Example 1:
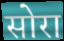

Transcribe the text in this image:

सोरा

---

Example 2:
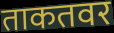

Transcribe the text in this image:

ताकतवर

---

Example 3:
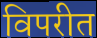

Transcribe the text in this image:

विपरीत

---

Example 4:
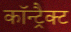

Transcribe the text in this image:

कॉन्ट्रैक्ट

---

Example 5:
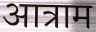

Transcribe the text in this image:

आत्राम